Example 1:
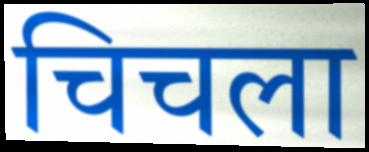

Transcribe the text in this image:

चिचला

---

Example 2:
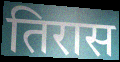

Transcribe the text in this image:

तिरास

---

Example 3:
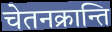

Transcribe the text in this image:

चेतनक्रान्ति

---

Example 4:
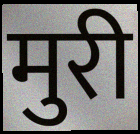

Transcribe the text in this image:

मुरी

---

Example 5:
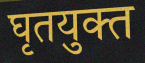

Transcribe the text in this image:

घृतयुक्त